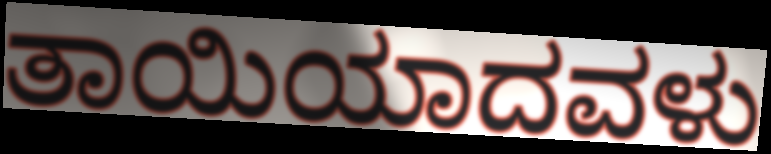
ತಾಯಿಯಾದವಳು